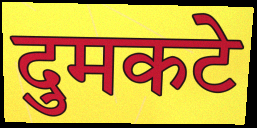
दुमकटे